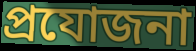
প্ৰযোজনা